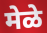
मेळे